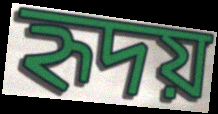
হৃদয়